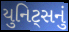
યુનિટ્સનું